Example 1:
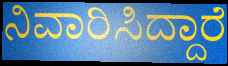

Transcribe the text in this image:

ನಿವಾರಿಸಿದ್ದಾರೆ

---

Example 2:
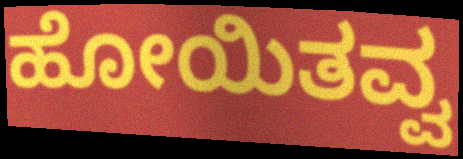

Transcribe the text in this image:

ಹೋಯಿತವ್ವ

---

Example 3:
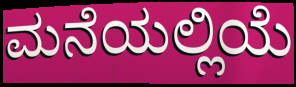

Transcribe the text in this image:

ಮನೆಯಲ್ಲಿಯೆ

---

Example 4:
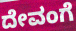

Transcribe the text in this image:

ದೇವಂಗೆ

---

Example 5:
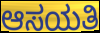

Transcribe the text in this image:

ಆಸಯತಿ